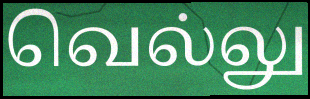
வெல்லு